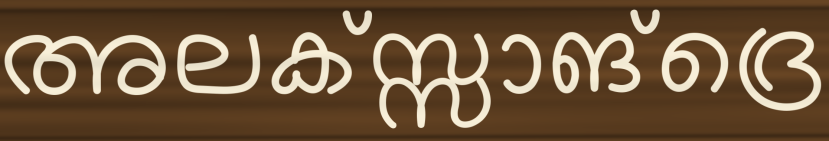
അലക്സ്സാങ്ദ്രെ